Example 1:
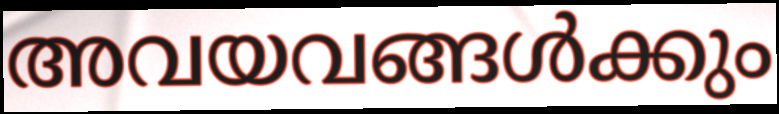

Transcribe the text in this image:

അവയവങ്ങൾക്കും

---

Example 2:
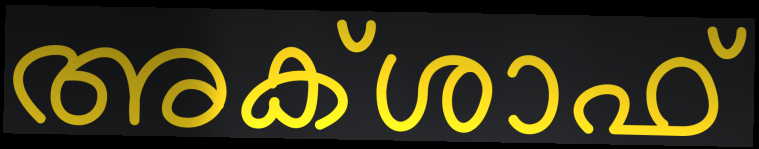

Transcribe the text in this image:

അക്ശാഫ്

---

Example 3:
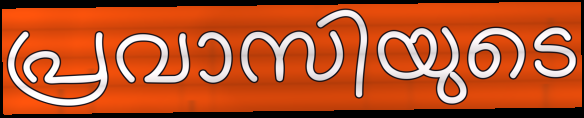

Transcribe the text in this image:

പ്രവാസിയുടെ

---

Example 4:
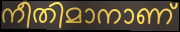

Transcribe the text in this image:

നീതിമാനാണ്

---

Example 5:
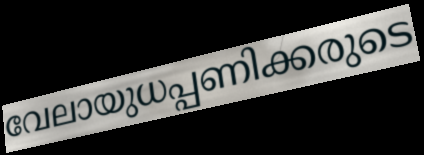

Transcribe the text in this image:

വേലായുധപ്പണിക്കരുടെ